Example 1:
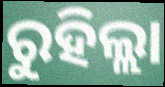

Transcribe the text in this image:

ରୁହିଲ୍ଲା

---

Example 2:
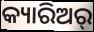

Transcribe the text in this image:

କ୍ୟାରିଅର୍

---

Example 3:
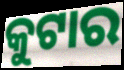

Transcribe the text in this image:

କୁଟାର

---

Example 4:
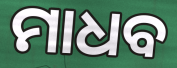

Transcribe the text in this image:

ମାଧବ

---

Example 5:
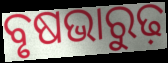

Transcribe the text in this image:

ବୃଷଭାରୁଢ଼